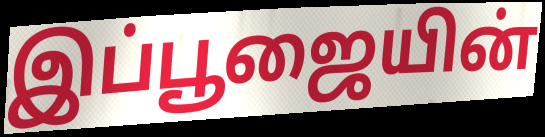
இப்பூஜையின்